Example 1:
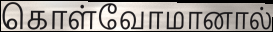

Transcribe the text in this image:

கொள்வோமானால்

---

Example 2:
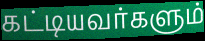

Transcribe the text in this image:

கட்டியவர்களும்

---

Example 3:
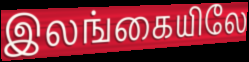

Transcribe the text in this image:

இலங்கையிலே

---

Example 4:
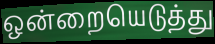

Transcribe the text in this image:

ஒன்றையெடுத்து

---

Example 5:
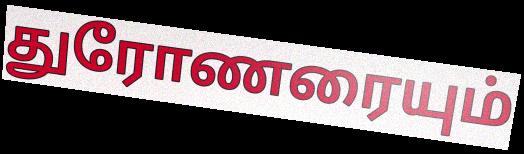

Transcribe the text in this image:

துரோணரையும்